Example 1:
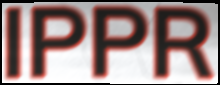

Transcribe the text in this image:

IPPR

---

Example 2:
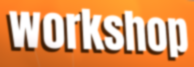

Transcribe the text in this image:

workshop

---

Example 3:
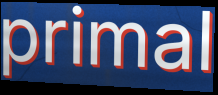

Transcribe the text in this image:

primal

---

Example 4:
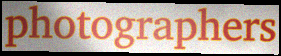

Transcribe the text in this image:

photographers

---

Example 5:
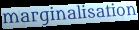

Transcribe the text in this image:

marginalisation